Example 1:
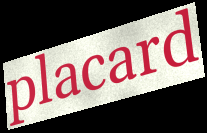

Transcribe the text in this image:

placard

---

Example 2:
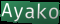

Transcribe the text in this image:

Ayako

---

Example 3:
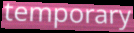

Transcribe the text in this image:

temporary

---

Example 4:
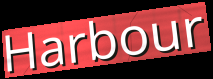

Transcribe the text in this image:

Harbour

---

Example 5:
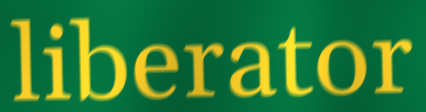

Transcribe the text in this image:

liberator